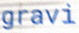
gravi